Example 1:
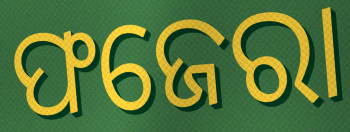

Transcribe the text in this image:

ଫଜେରା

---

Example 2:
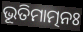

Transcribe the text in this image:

ଭୂତିମାତ୍ମନଃ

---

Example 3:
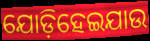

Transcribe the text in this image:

ଯୋଡ଼ିହେଇଯାଉ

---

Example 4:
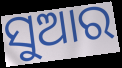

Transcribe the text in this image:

ସୁଆର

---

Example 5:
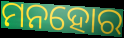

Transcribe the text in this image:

ମନହୋର